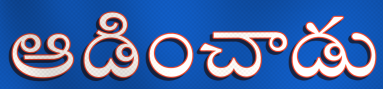
ఆడించాడు